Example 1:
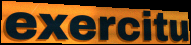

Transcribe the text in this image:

exercitu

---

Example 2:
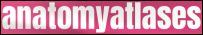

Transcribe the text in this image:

anatomyatlases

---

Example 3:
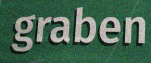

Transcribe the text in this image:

graben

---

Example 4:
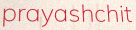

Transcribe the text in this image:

prayashchit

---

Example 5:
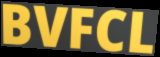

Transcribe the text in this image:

BVFCL